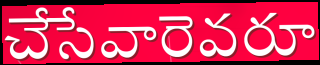
చేసేవారెవరూ